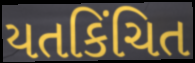
યતકિંચિત